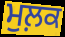
ਮੁਲ਼ਕ